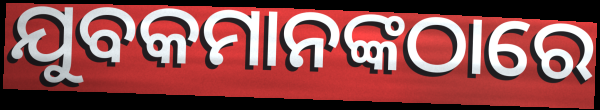
ଯୁବକମାନଙ୍କଠାରେ